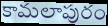
కామలాపురం